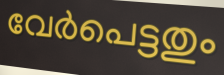
വേർപെട്ടതും